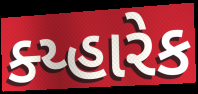
ક્ય્હારેક